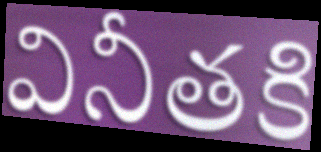
వినీతకి